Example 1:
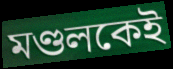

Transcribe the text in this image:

মণ্ডলকেই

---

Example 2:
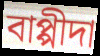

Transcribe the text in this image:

বাপ্পীদা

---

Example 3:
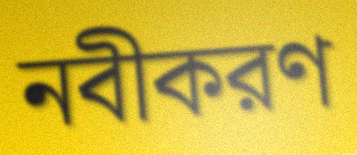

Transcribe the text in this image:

নবীকরণ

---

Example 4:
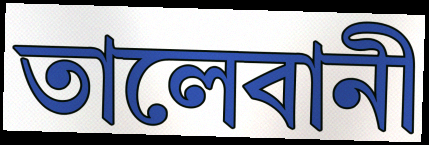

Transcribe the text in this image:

তালেবানী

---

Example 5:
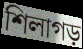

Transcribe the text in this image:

শিলাগড়